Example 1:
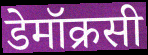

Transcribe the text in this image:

डेमॉक्रसी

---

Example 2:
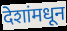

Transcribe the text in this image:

देशांमधून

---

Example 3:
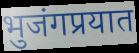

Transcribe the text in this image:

भुजंगप्रयात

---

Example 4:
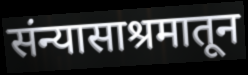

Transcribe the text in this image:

संन्यासाश्रमातून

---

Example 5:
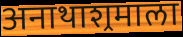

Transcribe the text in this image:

अनाथाश्रमाला